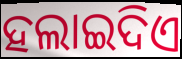
ହଲାଇଦିଏ